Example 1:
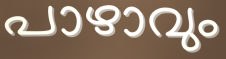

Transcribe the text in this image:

പാഴാവും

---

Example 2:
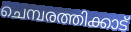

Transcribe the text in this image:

ചെമ്പരത്തിക്കാട്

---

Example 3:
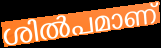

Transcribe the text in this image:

ശിൽപമാണ്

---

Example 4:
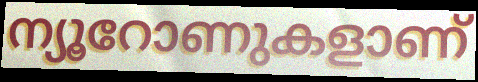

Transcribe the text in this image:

ന്യൂറോണുകളാണ്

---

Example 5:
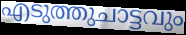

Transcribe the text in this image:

എടുത്തുചാട്ടവും